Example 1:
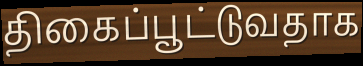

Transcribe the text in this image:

திகைப்பூட்டுவதாக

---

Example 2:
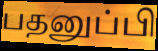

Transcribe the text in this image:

பதனுப்பி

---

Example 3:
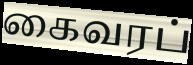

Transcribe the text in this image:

கைவரப்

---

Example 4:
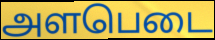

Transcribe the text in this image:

அளபெடை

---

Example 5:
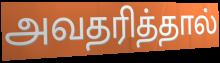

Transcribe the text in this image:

அவதரித்தால்